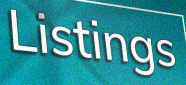
Listings